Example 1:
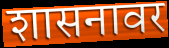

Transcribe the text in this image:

शासनावर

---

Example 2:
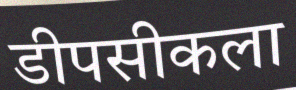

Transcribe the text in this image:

डीपसीकला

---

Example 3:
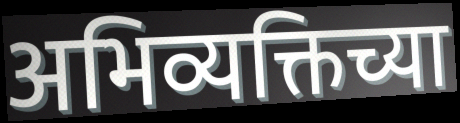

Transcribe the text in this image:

अभिव्यक्तिच्या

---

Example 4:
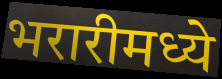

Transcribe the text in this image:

भरारीमध्ये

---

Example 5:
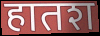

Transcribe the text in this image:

हातश